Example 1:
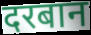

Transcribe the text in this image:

दरबान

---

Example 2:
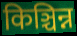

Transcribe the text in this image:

किञ्चिन्न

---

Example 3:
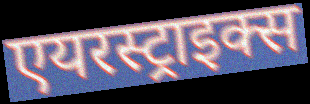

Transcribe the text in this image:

एयरस्ट्राइक्स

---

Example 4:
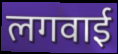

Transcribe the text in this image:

लगवाई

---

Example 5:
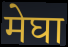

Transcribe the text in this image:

मेघा